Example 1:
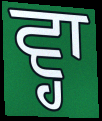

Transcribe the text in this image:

ਵ੍ਹਾ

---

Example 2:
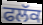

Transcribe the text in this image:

ਫਲੱਕ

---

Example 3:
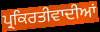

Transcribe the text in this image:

ਪ੍ਰਕਿਰਤੀਵਾਦੀਆਂ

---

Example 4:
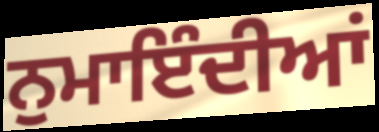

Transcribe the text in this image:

ਨੁਮਾਇੰਦੀਆਂ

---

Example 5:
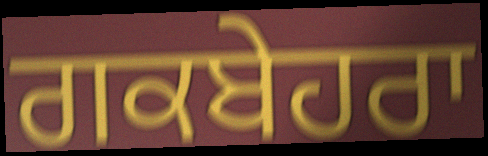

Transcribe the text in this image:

ਗਕਬੇਹਰਾ